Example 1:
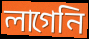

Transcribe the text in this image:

লাগেনি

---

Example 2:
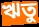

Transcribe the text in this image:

ঋতু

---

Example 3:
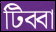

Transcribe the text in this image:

টিব্বা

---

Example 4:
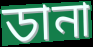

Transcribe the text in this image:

ডানা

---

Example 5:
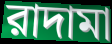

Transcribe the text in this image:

রাদামা